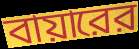
বায়ারের